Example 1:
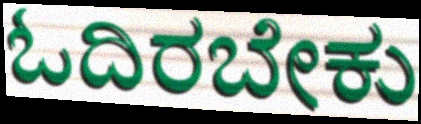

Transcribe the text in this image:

ಓದಿರಬೇಕು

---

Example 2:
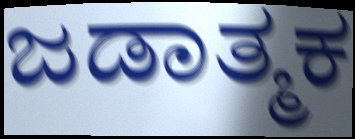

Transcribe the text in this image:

ಜಡಾತ್ಮಕ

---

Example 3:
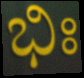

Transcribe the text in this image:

ಭಿಃ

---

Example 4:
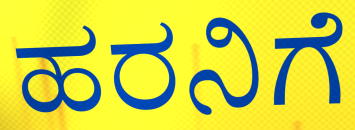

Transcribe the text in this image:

ಹರನಿಗೆ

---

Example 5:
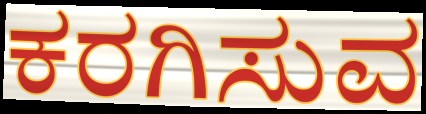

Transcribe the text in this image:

ಕರಗಿಸುವ